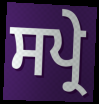
ਸਪ੍ਰੇ